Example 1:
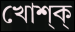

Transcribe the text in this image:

খোশ্ক্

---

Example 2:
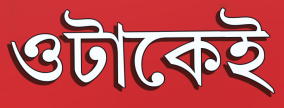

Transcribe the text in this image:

ওটাকেই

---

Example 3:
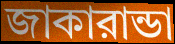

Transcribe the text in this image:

জাকারান্ডা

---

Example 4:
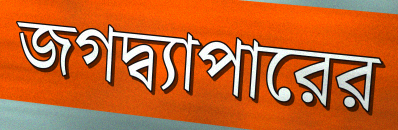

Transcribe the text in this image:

জগদ্ব্যাপারের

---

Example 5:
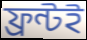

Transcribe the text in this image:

ফ্রন্টই